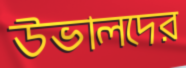
উভালদের